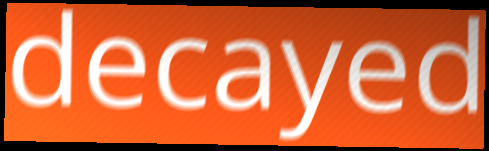
decayed